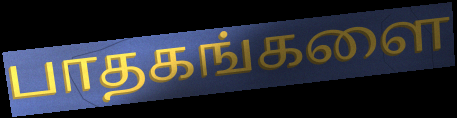
பாதகங்களை